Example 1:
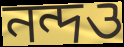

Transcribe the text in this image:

নন্দও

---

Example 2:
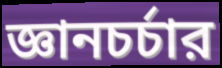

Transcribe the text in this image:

জ্ঞানচর্চার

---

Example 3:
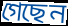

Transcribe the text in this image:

গেছেন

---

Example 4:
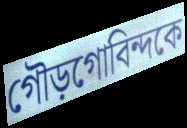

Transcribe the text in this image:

গৌড়গোবিন্দকে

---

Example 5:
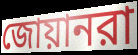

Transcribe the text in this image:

জোয়ানরা